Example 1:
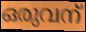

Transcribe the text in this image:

ഒരുവന്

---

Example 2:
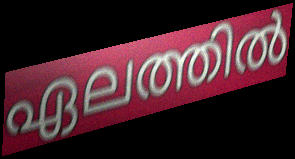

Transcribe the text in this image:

ഏലത്തിൽ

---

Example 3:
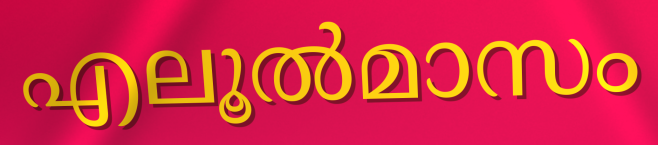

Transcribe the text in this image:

എലൂൽമാസം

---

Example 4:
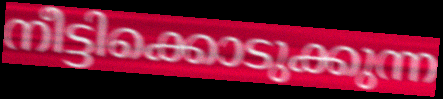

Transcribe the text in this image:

നീട്ടിക്കൊടുക്കുന്ന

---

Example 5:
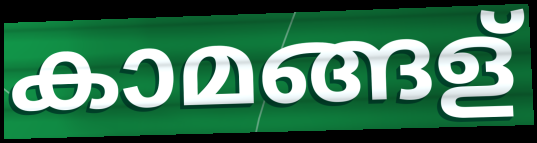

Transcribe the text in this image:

കാമങ്ങള്